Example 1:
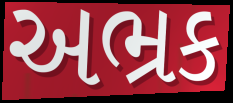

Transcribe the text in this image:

અભ્રક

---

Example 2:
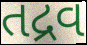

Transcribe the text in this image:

તદ્રવ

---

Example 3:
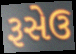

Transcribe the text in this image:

રૂસેઉ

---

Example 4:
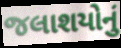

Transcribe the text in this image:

જલાશયોનું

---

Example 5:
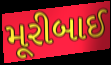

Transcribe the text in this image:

મૂરીબાઈ